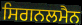
ਸਿਗਨਲਮੈਨ